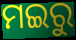
ମଇରୁ